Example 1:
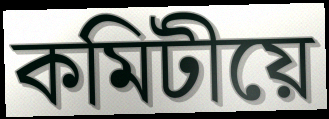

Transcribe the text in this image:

কমিটীয়ে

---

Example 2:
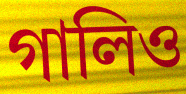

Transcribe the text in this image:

গালিও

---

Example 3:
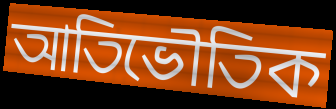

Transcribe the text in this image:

আতিভৌতিক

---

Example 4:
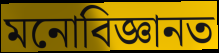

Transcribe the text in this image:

মনোবিজ্ঞানত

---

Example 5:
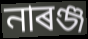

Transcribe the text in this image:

নাৰঞ্জ